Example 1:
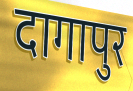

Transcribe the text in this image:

दागापुर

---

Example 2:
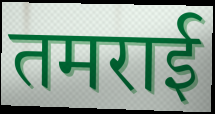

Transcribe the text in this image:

तमराई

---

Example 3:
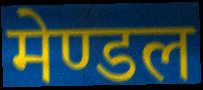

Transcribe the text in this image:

मेण्डल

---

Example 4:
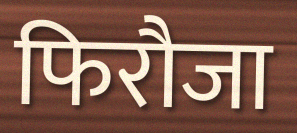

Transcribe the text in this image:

फिरौजा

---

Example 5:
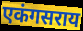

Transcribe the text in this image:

एकंगसराय